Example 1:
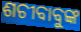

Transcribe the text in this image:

ଶଚୀବାବୁଙ୍କ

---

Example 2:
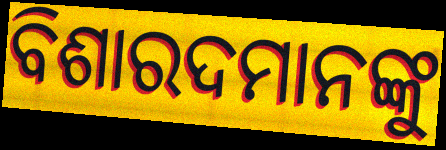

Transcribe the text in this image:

ବିଶାରଦମାନଙ୍କୁ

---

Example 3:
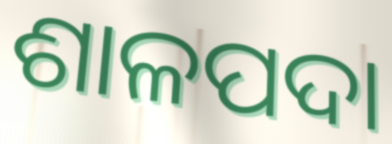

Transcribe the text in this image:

ଶାଳପଦା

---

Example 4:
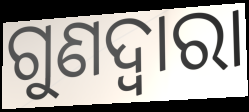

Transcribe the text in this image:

ଗୁଣଦ୍ଵାରା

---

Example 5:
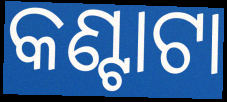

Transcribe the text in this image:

କଣ୍ଟାଟା